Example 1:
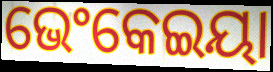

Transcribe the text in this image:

ଭେଂକେଇୟା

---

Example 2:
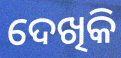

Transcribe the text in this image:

ଦେଖିକି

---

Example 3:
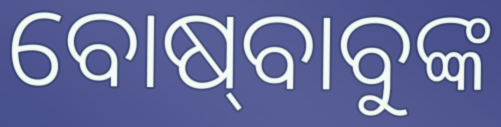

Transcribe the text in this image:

ବୋଷ୍‍ବାବୁଙ୍କ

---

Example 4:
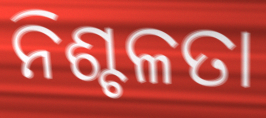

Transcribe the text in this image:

ନିଶ୍ଚଳତା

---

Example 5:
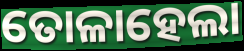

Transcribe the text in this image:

ତୋଳାହେଲା